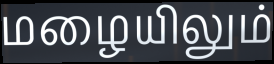
மழையிலும்